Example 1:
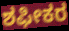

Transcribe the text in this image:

ಶಫೀಕರ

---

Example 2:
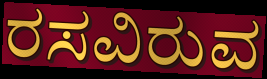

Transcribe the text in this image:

ರಸವಿರುವ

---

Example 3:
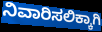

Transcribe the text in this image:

ನಿವಾರಿಸಲಿಕ್ಕಾಗಿ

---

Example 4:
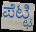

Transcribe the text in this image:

ಪೆಟ್ಟಿ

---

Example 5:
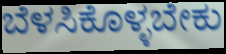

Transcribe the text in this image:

ಬೆಳಸಿಕೊಳ್ಳಬೇಕು